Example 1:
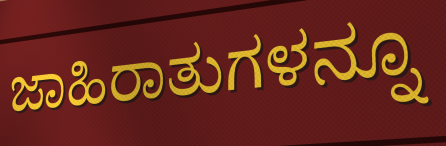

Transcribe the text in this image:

ಜಾಹಿರಾತುಗಳನ್ನೂ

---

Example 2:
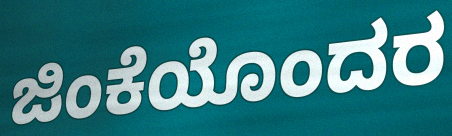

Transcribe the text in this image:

ಜಿಂಕೆಯೊಂದರ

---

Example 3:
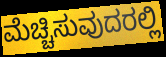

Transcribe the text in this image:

ಮೆಚ್ಚಿಸುವುದರಲ್ಲಿ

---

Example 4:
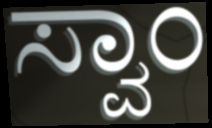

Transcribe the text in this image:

ಸ್ವಾಂ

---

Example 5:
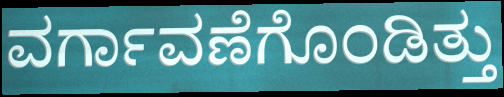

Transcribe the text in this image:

ವರ್ಗಾವಣೆಗೊಂಡಿತ್ತು